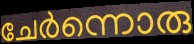
ചേർന്നൊരു